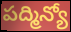
పద్మిన్యో